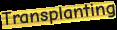
Transplanting